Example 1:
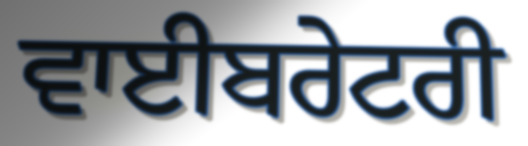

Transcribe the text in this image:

ਵਾਈਬਰੇਟਰੀ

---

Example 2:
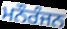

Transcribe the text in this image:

ਮਨੌਰੰਜਨ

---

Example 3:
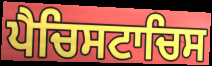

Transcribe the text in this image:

ਪੈਚਿਸਟਾਚਿਸ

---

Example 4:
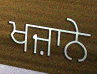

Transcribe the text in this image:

ਖਜ਼ਾਨੇ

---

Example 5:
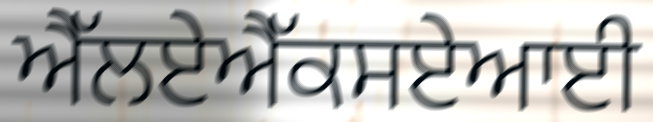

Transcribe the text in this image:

ਐੱਲਏਐੱਕਸਏਆਈ